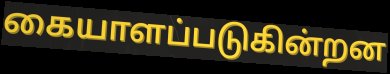
கையாளப்படுகின்றன